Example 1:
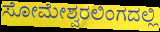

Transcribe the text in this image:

ಸೋಮೇಶ್ವರಲಿಂಗದಲ್ಲಿ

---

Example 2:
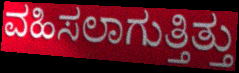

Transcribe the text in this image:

ವಹಿಸಲಾಗುತ್ತಿತ್ತು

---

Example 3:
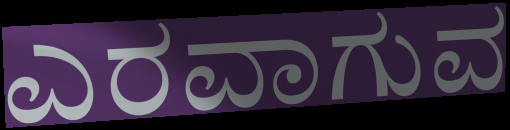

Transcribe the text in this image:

ಎರವಾಗುವ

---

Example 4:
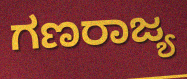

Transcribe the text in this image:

ಗಣರಾಜ್ಯ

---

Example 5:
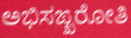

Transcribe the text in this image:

ಅಭಿಸಙ್ಖರೋತಿ